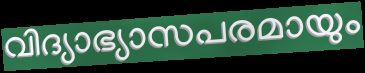
വിദ്യാഭ്യാസപരമായും